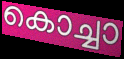
കൊച്ചാ